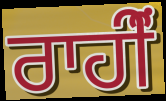
ਰਾਹੀਂੰ